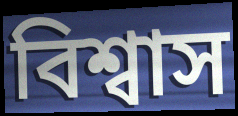
বিশ্বাস